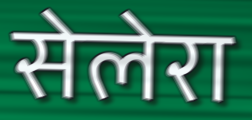
सेलेरा